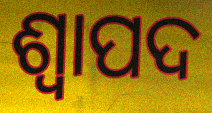
ଶ୍ୱାପଦ